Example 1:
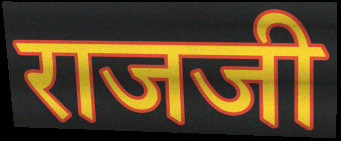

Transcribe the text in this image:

राजजी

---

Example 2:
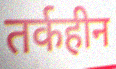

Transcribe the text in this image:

तर्कहीन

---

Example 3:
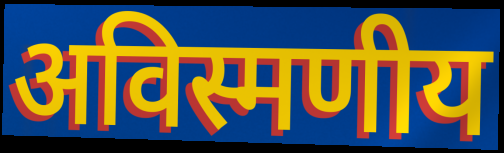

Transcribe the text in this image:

अविस्मणीय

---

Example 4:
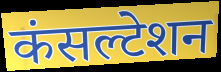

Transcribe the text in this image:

कंसल्टेशन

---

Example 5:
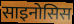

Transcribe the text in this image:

साइनोसिस